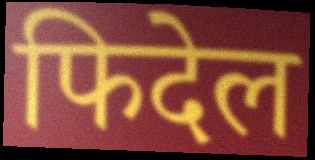
फिदेल